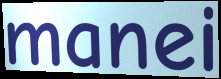
manei